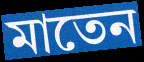
মাতেন